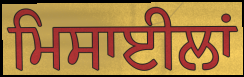
ਮਿਸਾਈਲਾਂ